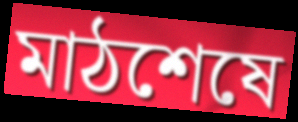
মাঠশেষে